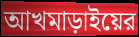
আখমাড়াইয়ের